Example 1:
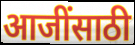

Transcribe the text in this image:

आजींसाठी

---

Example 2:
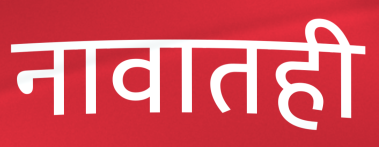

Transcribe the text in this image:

नावातही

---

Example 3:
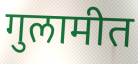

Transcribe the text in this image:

गुलामीत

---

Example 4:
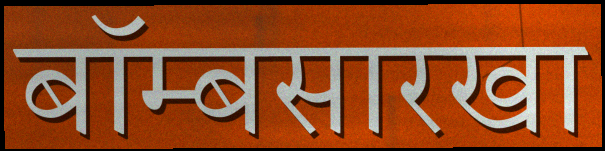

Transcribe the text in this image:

बॉम्बसारखा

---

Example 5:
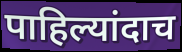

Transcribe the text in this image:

पाहिल्यांदाच